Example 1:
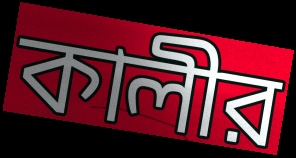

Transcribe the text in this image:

কালীর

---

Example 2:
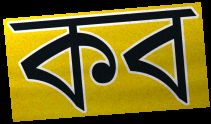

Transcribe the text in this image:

কব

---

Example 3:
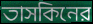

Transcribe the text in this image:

তাসকিনের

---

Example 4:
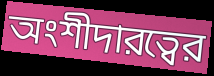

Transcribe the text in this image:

অংশীদারত্বের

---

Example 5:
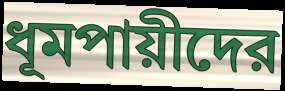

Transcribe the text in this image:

ধূমপায়ীদের